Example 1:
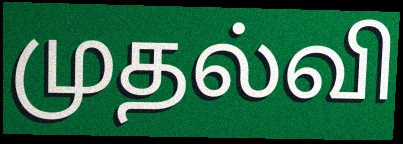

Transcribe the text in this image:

முதல்வி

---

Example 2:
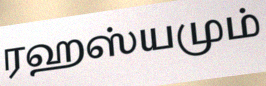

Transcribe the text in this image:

ரஹஸ்யமும்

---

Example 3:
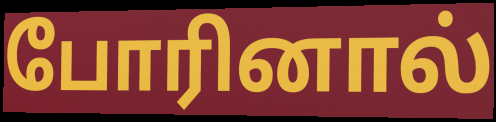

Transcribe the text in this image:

போரினால்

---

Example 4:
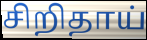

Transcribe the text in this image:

சிறிதாய்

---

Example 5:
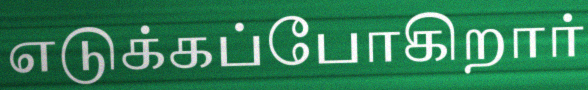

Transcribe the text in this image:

எடுக்கப்போகிறார்